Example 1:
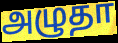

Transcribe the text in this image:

அழுதா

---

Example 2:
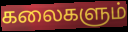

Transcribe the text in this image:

கலைகளும்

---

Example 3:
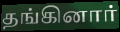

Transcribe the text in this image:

தங்கினார்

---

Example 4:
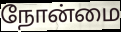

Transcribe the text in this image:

நோன்மை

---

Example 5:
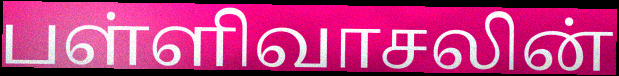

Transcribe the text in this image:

பள்ளிவாசலின்